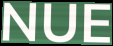
NUE